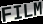
FILM